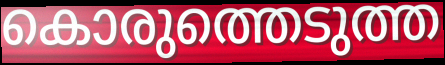
കൊരുത്തെടുത്ത